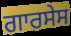
ਗਾਰਸੇਸ